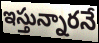
ఇస్తున్నారనే